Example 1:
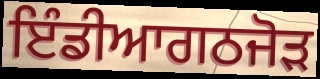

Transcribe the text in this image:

ਇੰਡੀਆਗਠਜੋੜ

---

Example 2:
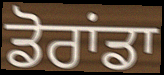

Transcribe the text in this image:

ਡੋਰਾਂਡਾ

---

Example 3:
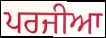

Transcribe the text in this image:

ਪਰਜੀਆ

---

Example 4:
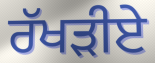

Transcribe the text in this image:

ਰੱਖੜੀਏ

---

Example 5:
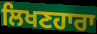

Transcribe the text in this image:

ਲਿਖਣਹਾਰਾ